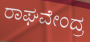
ರಾಘವೇಂದ್ರ